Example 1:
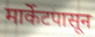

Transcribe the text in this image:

मार्केटपासून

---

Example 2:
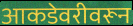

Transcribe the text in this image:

आकडेवरीवरून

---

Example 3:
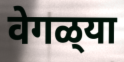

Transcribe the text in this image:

वेगळ्‌या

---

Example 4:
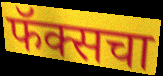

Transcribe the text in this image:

फॅक्सचा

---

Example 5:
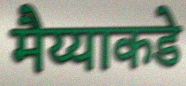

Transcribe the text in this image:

मैय्याकडे